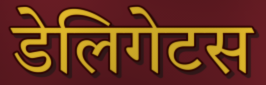
डेलिगेटस